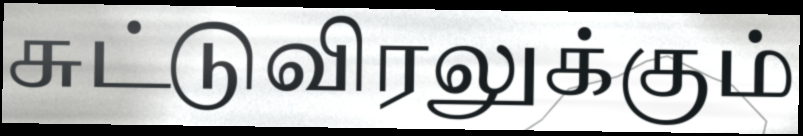
சுட்டுவிரலுக்கும்